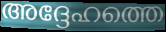
അദ്ദേഹത്തെ